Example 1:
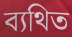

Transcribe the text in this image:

ব্যথিত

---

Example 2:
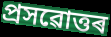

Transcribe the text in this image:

প্ৰসৱোত্তৰ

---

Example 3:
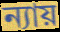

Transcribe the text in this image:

ন্যায়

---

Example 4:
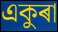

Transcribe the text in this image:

একুৰা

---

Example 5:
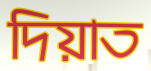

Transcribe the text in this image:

দিয়াত